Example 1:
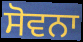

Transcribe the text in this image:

ਸੋਵਨਾ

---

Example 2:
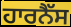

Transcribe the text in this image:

ਹਾਰਨੈੱਸ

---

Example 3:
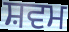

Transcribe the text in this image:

ਸ਼ਵਮ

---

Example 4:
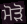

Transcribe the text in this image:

ਮੋੜੋ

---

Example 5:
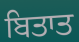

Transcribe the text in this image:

ਬਿਤਾਤ